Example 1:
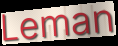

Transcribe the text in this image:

Leman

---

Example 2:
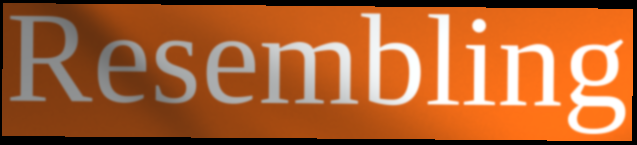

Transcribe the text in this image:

Resembling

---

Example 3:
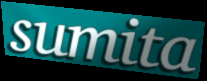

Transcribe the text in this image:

sumita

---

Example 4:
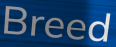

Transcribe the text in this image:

Breed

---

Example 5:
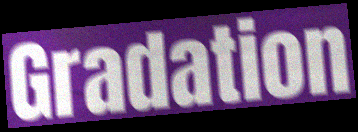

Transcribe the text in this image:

Gradation